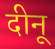
दीनू